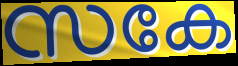
സകേ